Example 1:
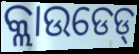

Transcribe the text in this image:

କ୍ଲାଉଡେଡ୍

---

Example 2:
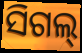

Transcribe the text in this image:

ସିଗଲ୍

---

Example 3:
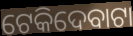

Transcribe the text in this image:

ଟେକିଦେବାଟା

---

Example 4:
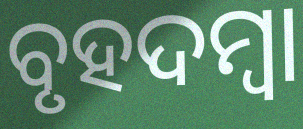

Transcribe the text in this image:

ବୃହଦମ୍ବା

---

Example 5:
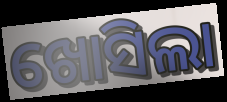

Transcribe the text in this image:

ଖୋସିଲା